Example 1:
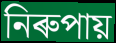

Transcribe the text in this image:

নিৰুপায়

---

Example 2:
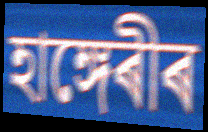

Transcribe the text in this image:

হাঙ্গেৰীৰ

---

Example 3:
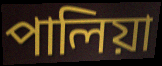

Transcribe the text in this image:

পালিয়া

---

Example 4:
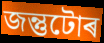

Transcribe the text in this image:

জন্তুটোৰ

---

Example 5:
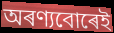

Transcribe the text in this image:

অৰণ্যবোৰেই